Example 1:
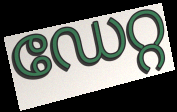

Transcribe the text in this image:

ഡേറ്റ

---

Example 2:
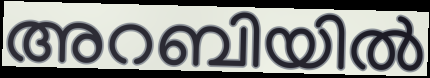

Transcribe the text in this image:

അറബിയിൽ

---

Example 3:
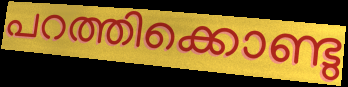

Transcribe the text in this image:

പറത്തിക്കൊണ്ടു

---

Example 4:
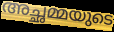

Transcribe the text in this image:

അച്ഛമ്മയുടെ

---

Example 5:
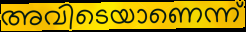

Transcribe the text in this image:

അവിടെയാണെന്ന്